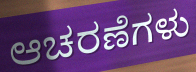
ಆಚರಣೆಗಳು